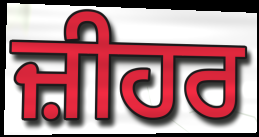
ਜ਼ੀਹਰ